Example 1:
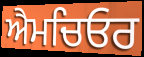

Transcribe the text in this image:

ਐਮਚਿਓਰ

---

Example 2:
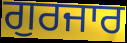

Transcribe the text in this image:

ਗੁਰਜਾਰ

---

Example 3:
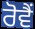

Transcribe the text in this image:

ਰੋਵੈਂ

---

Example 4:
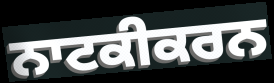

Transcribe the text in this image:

ਨਾਟਕੀਕਰਨ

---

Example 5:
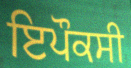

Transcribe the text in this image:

ਇਪੌਕਸੀ